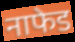
नाफेड